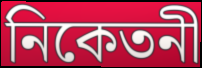
নিকেতনী